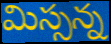
మిస్సన్న